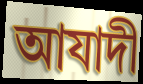
আযাদী